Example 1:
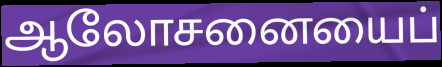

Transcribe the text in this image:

ஆலோசனையைப்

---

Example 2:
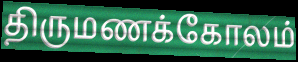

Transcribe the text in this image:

திருமணக்கோலம்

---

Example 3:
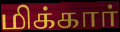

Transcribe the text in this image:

மிக்கார்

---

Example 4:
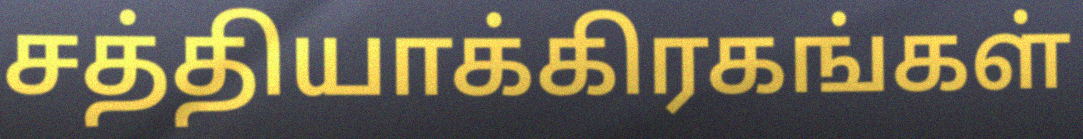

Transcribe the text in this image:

சத்தியாக்கிரகங்கள்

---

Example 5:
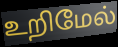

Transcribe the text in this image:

உறிமேல்